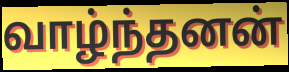
வாழ்ந்தனன்